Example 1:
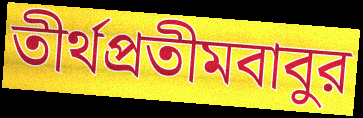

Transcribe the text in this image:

তীর্থপ্রতীমবাবুর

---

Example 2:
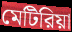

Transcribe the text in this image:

মেটিরিয়া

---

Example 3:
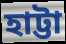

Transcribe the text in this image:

হাট্টা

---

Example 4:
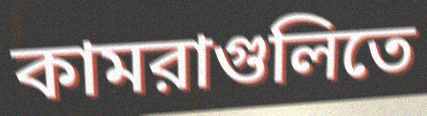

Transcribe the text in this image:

কামরাগুলিতে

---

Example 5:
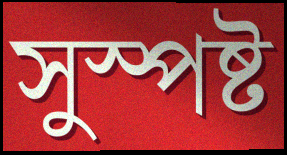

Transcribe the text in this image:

সুস্পষ্ট